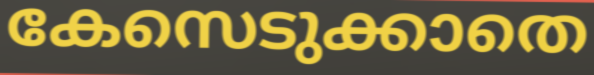
കേസെടുക്കാതെ